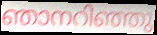
ഞാനറിഞ്ഞു